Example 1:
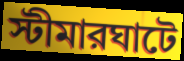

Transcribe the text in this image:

স্টীমারঘাটে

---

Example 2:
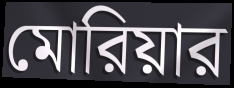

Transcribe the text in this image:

মোরিয়ার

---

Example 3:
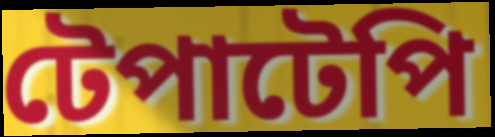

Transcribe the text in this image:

টেপাটেপি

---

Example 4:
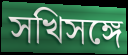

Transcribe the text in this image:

সখিসঙ্গে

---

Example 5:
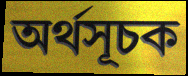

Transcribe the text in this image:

অর্থসূচক